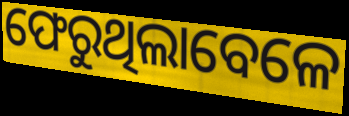
ଫେରୁଥିଲାବେଳେ